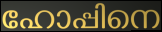
ഹോപ്പിനെ